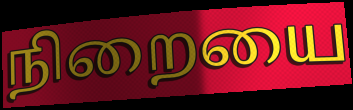
நிறையை